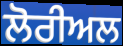
ਲੋਰੀਅਲ